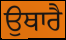
ਉਥਾਰੈ